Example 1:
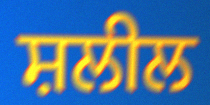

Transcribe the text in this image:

ਸ਼ਲੀਲ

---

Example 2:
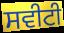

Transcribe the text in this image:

ਸਵੀਟੀ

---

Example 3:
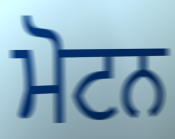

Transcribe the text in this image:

ਮੋਟਨ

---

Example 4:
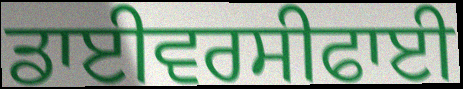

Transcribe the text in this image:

ਡਾਈਵਰਸੀਫਾਈ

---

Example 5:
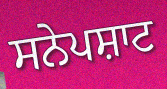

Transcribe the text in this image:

ਸਨੇਪਸ਼ਾਟ